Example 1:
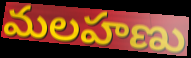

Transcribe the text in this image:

మలహణు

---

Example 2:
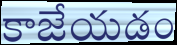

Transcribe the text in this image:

కాజేయడం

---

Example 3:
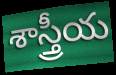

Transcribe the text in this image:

శాస్త్రీయ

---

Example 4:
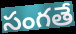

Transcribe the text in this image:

సంగతే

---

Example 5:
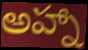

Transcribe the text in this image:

అహ్నా